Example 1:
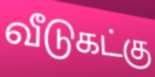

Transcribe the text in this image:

வீடுகட்கு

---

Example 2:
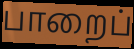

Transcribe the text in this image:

பாறைப்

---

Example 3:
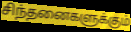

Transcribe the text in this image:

சிந்தனைகளுக்கும்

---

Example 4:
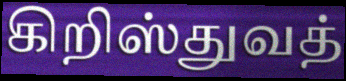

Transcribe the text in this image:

கிறிஸ்துவத்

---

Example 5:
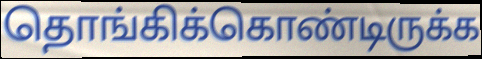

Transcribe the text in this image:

தொங்கிக்கொண்டிருக்க